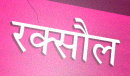
रक्‍सौल